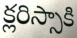
క్లరిస్సాకి